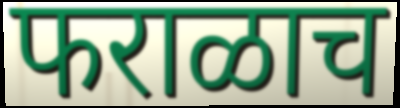
फराळाच